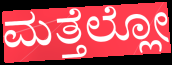
ಮತ್ತೆಲ್ಲೋ